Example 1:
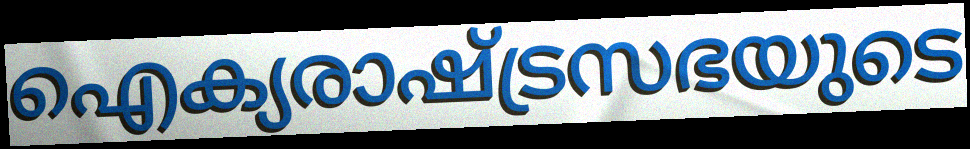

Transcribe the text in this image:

ഐക്യരാഷ്ട്രസഭയുടെ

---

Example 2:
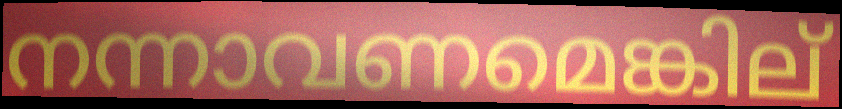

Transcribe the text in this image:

നന്നാവണമെങ്കില്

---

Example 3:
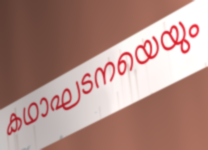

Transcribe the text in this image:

കഥാഘടനയെയും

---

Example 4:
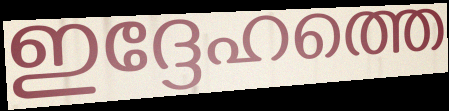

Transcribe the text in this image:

ഇദ്ദേഹത്തെ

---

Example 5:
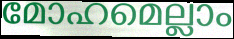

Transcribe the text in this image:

മോഹമെല്ലാം